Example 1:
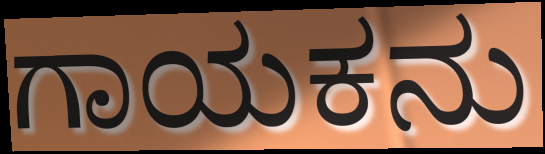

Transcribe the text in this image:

ಗಾಯಕನು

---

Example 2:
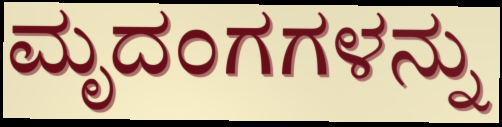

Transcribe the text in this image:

ಮೃದಂಗಗಳನ್ನು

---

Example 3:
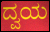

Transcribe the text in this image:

ದ್ವಯ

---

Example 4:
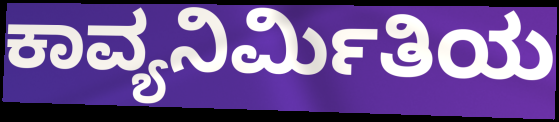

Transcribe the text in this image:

ಕಾವ್ಯನಿರ್ಮಿತಿಯ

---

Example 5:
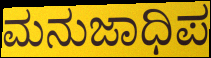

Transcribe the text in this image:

ಮನುಜಾಧಿಪ